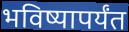
भविष्यापर्यंत